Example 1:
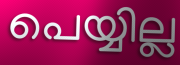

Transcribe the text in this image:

പെയ്യില്ല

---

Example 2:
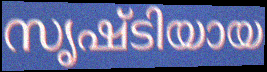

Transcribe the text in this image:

സൃഷ്ടിയായ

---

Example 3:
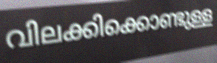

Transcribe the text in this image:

വിലക്കിക്കൊണ്ടുള്ള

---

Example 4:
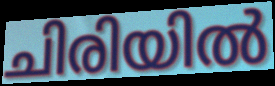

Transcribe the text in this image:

ചിരിയിൽ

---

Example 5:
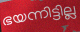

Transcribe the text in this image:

ഭയന്നിട്ടില്ല